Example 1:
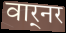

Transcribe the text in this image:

वार्नर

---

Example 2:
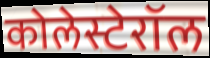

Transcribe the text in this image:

कोलेस्टेरॉल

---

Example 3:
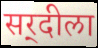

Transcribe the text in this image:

सर्दीला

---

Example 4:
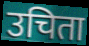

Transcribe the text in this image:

उचिता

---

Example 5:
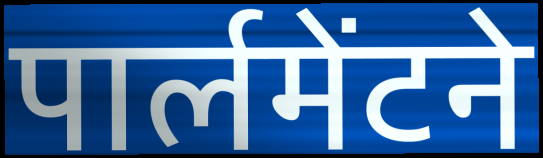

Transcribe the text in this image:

पार्लमेंटने